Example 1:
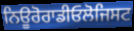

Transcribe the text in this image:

ਨਿਊਰੋਰਾਡੀਓਲੋਜਿਸਟ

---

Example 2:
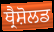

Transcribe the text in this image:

ਥ੍ਰੈਸ਼ੋਲਡ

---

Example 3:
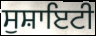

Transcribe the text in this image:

ਸੁਸ਼ਾਇਟੀ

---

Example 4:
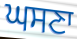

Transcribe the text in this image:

ਘਸਣਾ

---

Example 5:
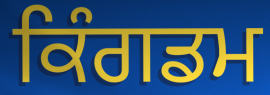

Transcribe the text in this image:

ਕਿੰਗਡਮ